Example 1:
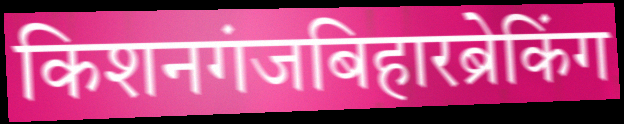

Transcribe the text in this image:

किशनगंजबिहारब्रेकिंग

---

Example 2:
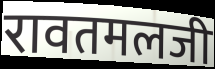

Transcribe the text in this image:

रावतमलजी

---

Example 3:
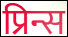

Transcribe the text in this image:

प्रिन्स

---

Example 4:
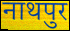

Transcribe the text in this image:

नाथपुर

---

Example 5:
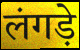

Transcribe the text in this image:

लंगड़े